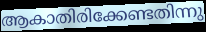
ആകാതിരിക്കേണ്ടതിന്നു